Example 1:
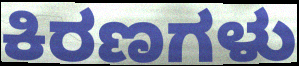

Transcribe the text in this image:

ಕಿರಣಗಳು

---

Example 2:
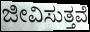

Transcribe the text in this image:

ಜೀವಿಸುತ್ತವೆ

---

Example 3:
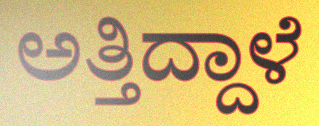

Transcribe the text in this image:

ಅತ್ತಿದ್ದಾಳೆ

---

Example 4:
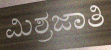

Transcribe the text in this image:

ಮಿಶ್ರಜಾತಿ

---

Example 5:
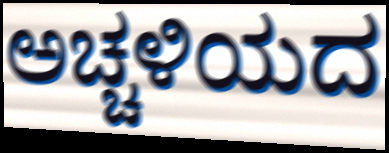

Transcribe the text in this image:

ಅಚ್ಚಳಿಯದ